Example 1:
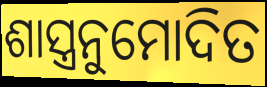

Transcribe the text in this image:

ଶାସ୍ତ୍ରନୁମୋଦିତ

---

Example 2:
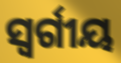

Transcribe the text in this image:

ସ୍ୱର୍ଗୀୟ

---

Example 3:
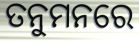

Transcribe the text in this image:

ତନୁମନରେ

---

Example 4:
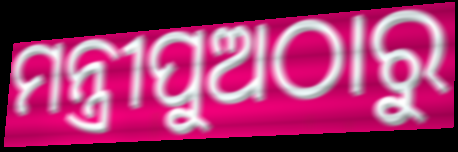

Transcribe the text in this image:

ମନ୍ତ୍ରୀପୁଅଠାରୁ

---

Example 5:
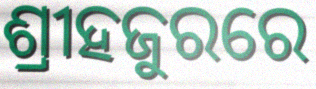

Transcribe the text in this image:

ଶ୍ରୀହଜୁରରେ